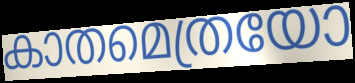
കാതമെത്രയോ